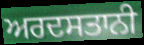
ਅਰਦਸਤਾਨੀ